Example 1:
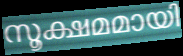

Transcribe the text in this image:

സൂക്ഷമമായി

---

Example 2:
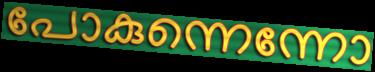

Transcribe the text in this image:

പോകുന്നെന്നോ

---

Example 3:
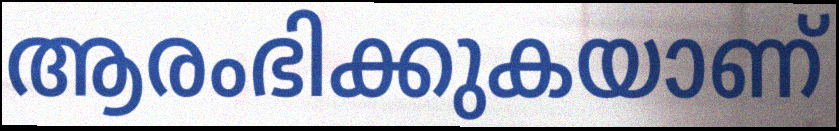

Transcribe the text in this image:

ആരംഭിക്കുകയാണ്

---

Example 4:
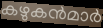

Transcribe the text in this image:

കഴുകൻമാർ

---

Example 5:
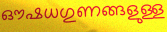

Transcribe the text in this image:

ഔഷധഗുണങ്ങളുള്ള